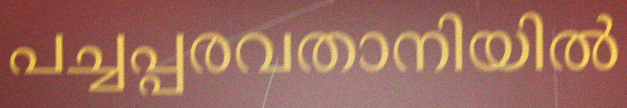
പച്ചപ്പരവതാനിയിൽ